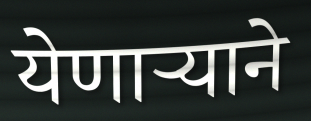
येणाऱ्याने